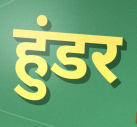
हुंडर